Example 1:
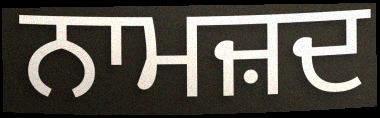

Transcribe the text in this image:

ਨਾਮਜ਼ਦ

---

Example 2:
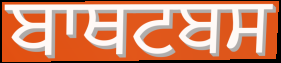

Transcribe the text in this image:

ਬਾਥਟਬਸ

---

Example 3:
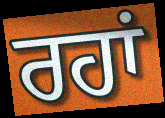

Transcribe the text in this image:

ਰਹਾਂ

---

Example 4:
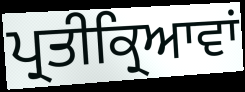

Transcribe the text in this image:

ਪ੍ਰਤੀਕ੍ਰਿਆਵਾਂ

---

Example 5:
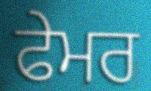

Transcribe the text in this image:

ਫੇਮਰ